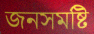
জনসমষ্টি